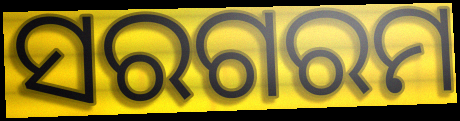
ସରଗରମ